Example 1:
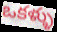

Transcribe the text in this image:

ఒకళ్ళు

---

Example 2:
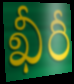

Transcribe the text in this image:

ఖీరీ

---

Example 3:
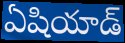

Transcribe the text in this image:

ఏషియాడ్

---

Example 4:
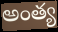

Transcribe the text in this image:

అంత్య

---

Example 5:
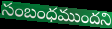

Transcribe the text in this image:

సంబంధముందని